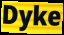
Dyke